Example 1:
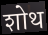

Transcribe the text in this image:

शोथ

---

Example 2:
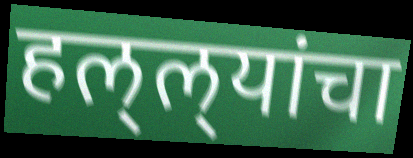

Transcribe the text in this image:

हल्ल्यांचा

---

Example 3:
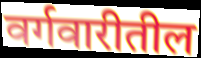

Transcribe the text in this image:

वर्गवारीतील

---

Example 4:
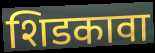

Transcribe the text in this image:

शिडकावा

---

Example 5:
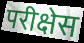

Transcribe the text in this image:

परीक्षेस